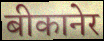
बीकानेर